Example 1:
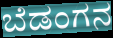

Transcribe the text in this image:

ಬೆಡಂಗನ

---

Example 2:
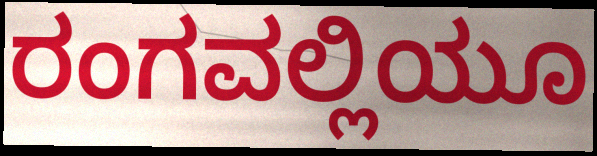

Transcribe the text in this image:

ರಂಗವಲ್ಲಿಯೂ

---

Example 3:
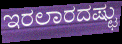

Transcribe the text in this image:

ಇರಲಾರದಷ್ಟು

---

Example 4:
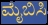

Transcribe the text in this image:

ಮೈಬಿಸಿ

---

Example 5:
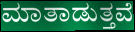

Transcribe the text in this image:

ಮಾತಾಡುತ್ತವೆ